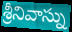
శ్రీనివాస్ను